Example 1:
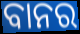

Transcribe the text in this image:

ବାନର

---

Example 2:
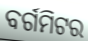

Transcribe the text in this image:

ବର୍ଗମିଟର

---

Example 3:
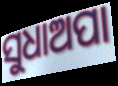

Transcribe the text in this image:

ସୁଧାଅପା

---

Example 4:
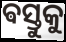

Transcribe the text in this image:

ଵସ୍ତୁକୁ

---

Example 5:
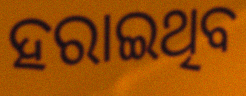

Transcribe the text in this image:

ହରାଇଥିବ